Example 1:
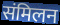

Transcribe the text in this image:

संमिलन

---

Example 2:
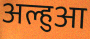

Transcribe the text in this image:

अल्हुआ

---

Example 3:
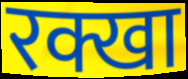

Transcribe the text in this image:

रक्खा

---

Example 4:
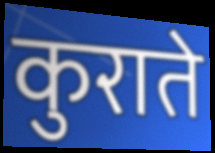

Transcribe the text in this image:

कुराते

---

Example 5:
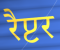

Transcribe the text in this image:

रैप्टर